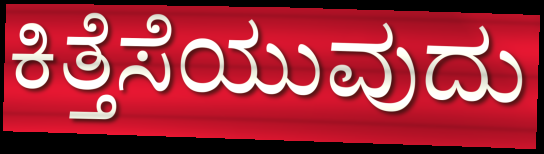
ಕಿತ್ತೆಸೆಯುವುದು